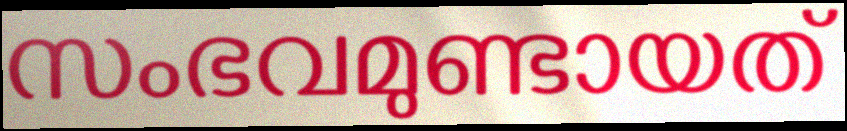
സംഭവമുണ്ടായത്